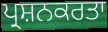
ਪ੍ਰਸ਼ਨਕਰਤਾ